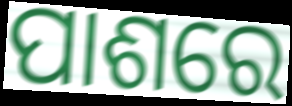
ପାଶରେ